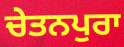
ਚੇਤਨਪੁਰਾ